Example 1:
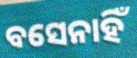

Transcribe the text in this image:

ବସେନାହିଁ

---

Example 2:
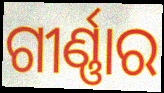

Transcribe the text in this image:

ଗୀର୍ଣ୍ଣାର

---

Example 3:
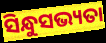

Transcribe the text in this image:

ସିନ୍ଧୁସଭ୍ୟତା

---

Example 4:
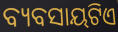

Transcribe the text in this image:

ବ୍ୟବସାୟଟିଏ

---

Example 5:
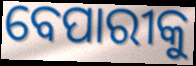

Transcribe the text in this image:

ବେପାରୀକୁ